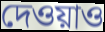
দেওয়াও